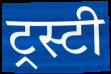
ट्रस्टी